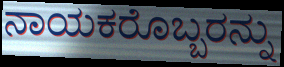
ನಾಯಕರೊಬ್ಬರನ್ನು